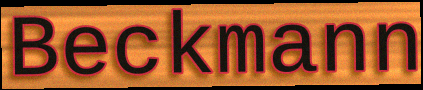
Beckmann